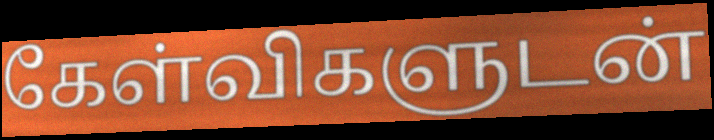
கேள்விகளுடன்